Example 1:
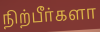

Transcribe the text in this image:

நிற்பீர்களா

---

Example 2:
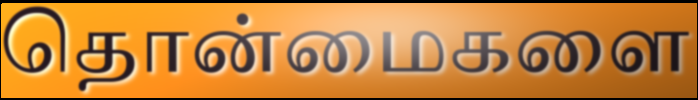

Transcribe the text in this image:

தொன்மைகளை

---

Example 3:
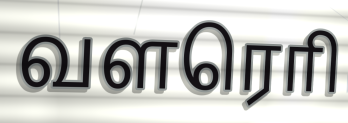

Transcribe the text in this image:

வளரெரி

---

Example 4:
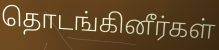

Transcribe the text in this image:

தொடங்கினீர்கள்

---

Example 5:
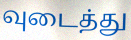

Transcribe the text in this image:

வுடைத்து